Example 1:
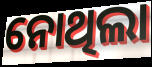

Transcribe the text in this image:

ନୋଥିଲା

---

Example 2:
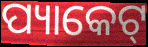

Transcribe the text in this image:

ପ୍ୟାକେଟ୍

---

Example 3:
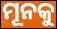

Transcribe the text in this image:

ମୂନକୁ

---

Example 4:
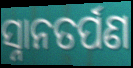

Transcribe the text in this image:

ସ୍ନାନତର୍ପଣ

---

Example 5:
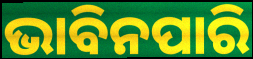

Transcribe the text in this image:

ଭାବିନପାରି